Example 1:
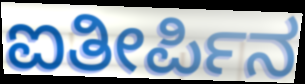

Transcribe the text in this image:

ಐತೀರ್ಪಿನ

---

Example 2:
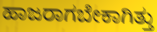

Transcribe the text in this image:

ಹಾಜರಾಗಬೇಕಾಗಿತ್ತು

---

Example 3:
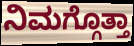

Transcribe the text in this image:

ನಿಮಗ್ಗೊತ್ತಾ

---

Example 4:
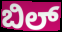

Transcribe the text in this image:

ಬಿಲ್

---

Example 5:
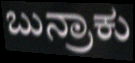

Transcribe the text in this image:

ಬುನ್ರಾಕು